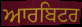
ਆਰਬਿਟਰ